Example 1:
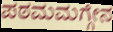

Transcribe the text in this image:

ಪಠಮಮಗ್ಗೇನ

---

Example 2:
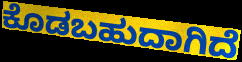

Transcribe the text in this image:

ಕೊಡಬಹುದಾಗಿದೆ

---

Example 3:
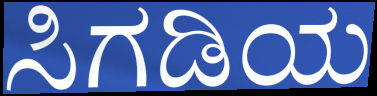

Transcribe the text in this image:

ಸಿಗಡಿಯ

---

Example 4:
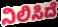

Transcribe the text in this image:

ನಿಲಿಸಿದೆ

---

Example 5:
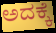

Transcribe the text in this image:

ಅದಕ್ಕೆ